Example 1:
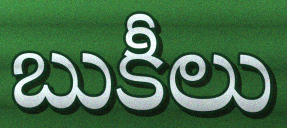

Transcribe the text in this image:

బుకీలు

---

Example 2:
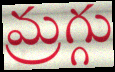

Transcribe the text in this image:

మ్రగ్గు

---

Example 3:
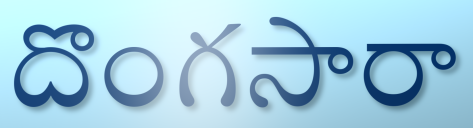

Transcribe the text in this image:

దొంగసారా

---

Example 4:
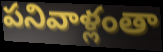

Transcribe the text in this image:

పనివాళ్లంతా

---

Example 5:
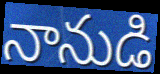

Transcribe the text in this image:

నానుడి